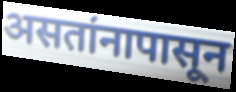
असतांनापासून